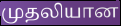
முதலியான